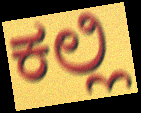
ಕಲ್ಲಿ